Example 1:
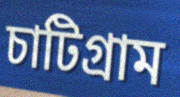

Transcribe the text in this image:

চাটিগ্রাম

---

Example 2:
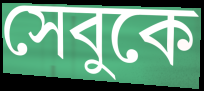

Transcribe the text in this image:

সেবুকে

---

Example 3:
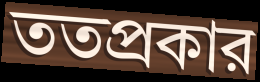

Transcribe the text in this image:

ততপ্রকার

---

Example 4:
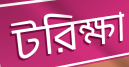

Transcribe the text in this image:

টরিক্ষা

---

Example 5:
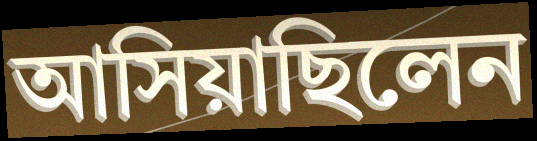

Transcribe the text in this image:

আসিয়াছিলেন